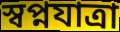
স্বপ্নযাত্রা